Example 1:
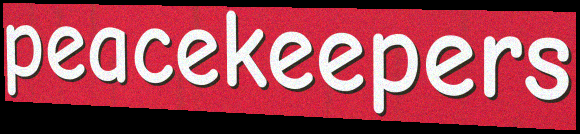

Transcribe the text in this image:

peacekeepers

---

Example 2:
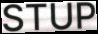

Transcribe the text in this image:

STUP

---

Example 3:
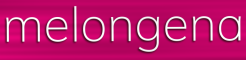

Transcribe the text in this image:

melongena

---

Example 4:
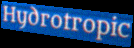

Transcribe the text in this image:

Hydrotropic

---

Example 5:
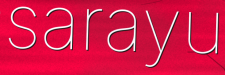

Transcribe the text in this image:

sarayu